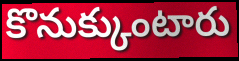
కొనుక్కుంటారు